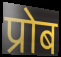
प्रोब